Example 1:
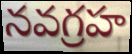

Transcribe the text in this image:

నవగ్రహ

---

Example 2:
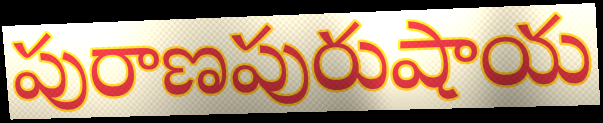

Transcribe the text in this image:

పురాణపురుషాయ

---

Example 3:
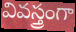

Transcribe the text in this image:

వివస్త్రంగా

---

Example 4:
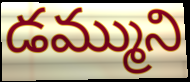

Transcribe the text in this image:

డమ్ముని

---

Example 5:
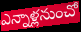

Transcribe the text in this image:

ఎన్నాళ్లనుంచో